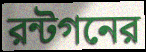
রন্টগনের